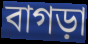
বাগড়া